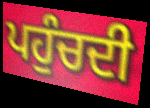
ਪਹੁੰਚਦੀ